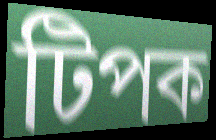
টিপক